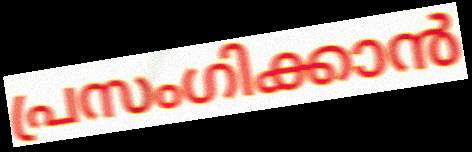
പ്രസംഗിക്കാൻ